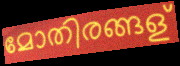
മോതിരങ്ങള്